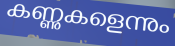
കണ്ണുകളെന്നും